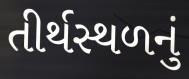
તીર્થસ્થળનું